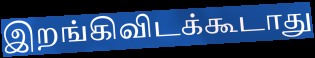
இறங்கிவிடக்கூடாது